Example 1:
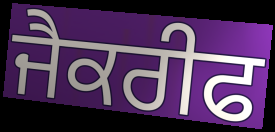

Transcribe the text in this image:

ਜੈਕਰੀਫ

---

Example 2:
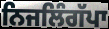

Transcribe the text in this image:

ਨਿਜਲਿੰਗੱਪਾ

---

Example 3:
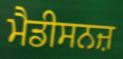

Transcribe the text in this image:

ਮੈਡੀਸਨਜ਼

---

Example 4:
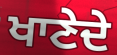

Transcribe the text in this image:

ਖਾਣੇਦੇ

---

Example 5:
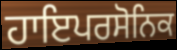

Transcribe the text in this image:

ਹਾਇਪਰਸੋਨਿਕ